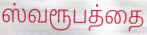
ஸ்வரூபத்தை